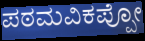
ಪಠಮವಿಕಪ್ಪೋ